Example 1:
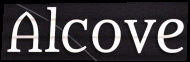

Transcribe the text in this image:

Alcove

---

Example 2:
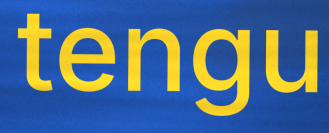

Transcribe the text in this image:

tengu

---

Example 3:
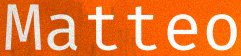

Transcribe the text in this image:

Matteo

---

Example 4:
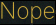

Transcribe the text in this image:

Nope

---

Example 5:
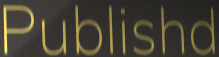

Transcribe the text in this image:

Publishd